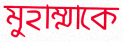
মুহাম্মাকে